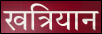
खत्रियान